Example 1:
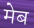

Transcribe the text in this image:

मेब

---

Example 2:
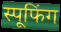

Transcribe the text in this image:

स्पूफिंग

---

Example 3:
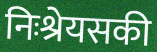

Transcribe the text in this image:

निःश्रेयसकी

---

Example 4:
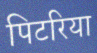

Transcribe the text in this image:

पिटरिया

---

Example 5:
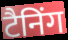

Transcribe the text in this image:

टैनिंग